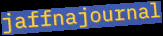
jaffnajournal